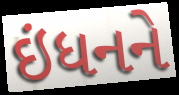
ઇંધનને